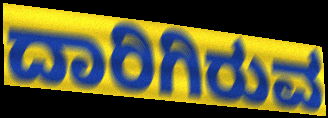
ದಾರಿಗಿರುವ